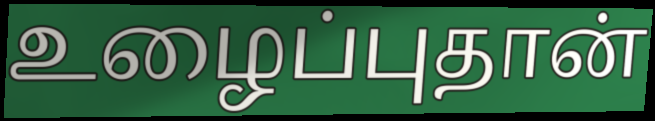
உழைப்புதான்